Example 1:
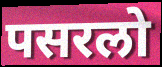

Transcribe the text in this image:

पसरलो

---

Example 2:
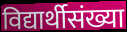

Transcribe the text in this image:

विद्यार्थीसंख्या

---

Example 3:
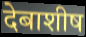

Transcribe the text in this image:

देबाशीष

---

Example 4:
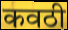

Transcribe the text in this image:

कवठी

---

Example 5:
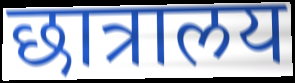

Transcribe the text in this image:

छात्रालय